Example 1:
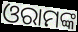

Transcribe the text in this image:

ଓରାମଙ୍କ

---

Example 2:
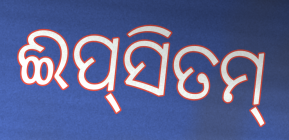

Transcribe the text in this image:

ଈପ୍‌ସିତମ୍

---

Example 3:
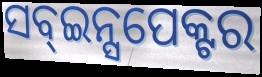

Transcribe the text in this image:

ସବ୍ଇନ୍ସପେକ୍ଟର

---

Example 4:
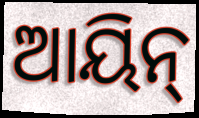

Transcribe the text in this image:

ଆୟିନ୍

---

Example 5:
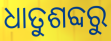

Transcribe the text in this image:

ଧାତୁଶବ୍ଦରୁ